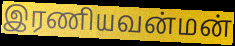
இரணியவன்மன்